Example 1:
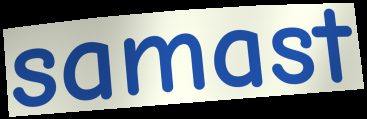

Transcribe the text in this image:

samast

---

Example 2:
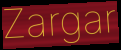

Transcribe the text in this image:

Zargar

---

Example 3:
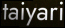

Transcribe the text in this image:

taiyari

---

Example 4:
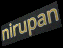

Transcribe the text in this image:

nirupan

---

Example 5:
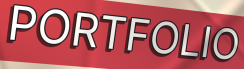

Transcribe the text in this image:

PORTFOLIO